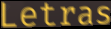
Letras